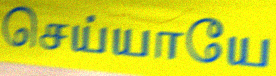
செய்யாயே